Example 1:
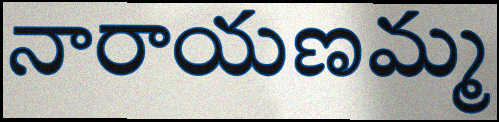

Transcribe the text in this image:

నారాయణమ్మ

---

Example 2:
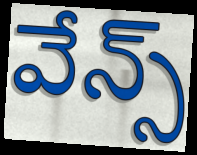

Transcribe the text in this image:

వేన్స్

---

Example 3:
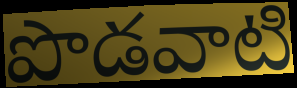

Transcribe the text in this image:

పొడవాటి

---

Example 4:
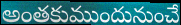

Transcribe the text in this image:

అంతకుముందునుంచే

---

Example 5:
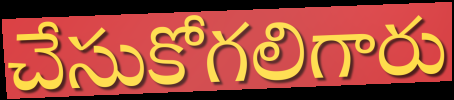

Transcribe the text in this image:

చేసుకోగలిగారు